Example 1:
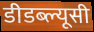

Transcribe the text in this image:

डीडब्ल्यूसी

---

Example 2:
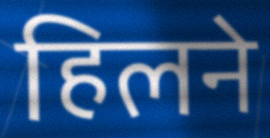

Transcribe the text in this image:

हिलने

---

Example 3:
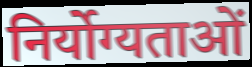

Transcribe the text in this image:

निर्योग्यताओं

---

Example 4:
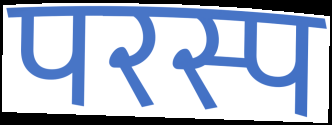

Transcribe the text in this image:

परस्प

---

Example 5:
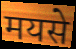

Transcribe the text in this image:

मयसे